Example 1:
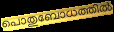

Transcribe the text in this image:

പൊതുബോധത്തിൽ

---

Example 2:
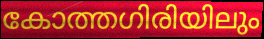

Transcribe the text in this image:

കോത്തഗിരിയിലും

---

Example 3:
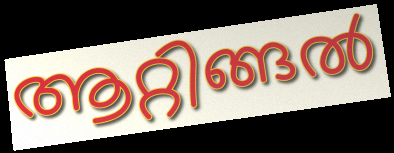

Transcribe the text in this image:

ആറ്റിങ്ങൽ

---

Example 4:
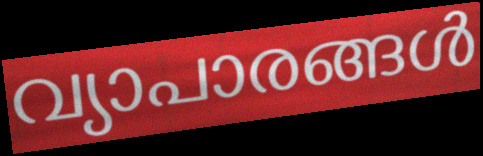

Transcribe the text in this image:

വ്യാപാരങ്ങൾ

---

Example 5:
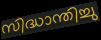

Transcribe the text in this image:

സിദ്ധാന്തിച്ചു